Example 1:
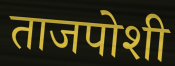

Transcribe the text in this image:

ताजपोशी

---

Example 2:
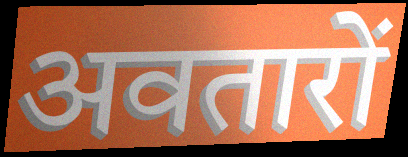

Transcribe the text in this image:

अवतारों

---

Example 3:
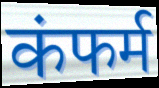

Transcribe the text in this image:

कंफर्म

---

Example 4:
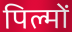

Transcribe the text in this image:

पिल्मों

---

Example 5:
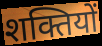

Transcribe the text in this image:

शक्तियों